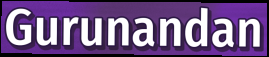
Gurunandan